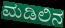
ಮಡಿಲಿನ